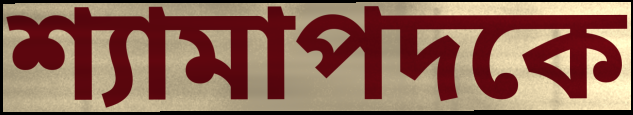
শ্যামাপদকে